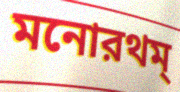
মনোরথম্